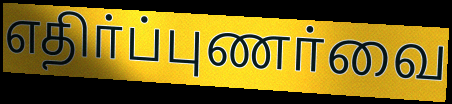
எதிர்ப்புணர்வை